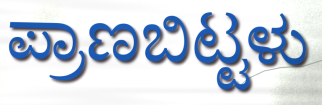
ಪ್ರಾಣಬಿಟ್ಟಳು